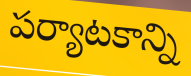
పర్యాటకాన్ని